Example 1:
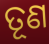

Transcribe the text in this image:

ତୂଣ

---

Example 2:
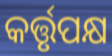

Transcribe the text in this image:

କର୍ତ୍ତୃପକ୍ଷ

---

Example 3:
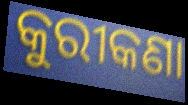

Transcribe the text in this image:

କୁରୀକଣା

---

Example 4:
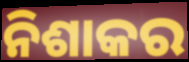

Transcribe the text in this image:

ନିଶାକର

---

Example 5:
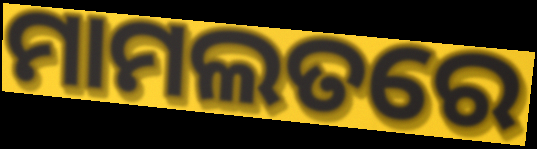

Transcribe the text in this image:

ମାମଲତରେ